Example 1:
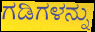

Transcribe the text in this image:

ಗಡಿಗಳನ್ನು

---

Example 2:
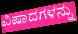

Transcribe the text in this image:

ವಿಷಾದಗಳನ್ನು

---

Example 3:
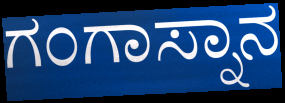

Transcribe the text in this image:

ಗಂಗಾಸ್ನಾನ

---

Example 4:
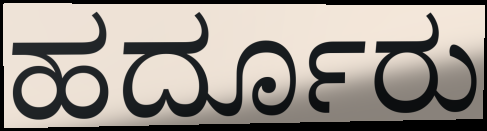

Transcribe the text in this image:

ಹರ್ದೂರು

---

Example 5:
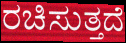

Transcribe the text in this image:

ರಚಿಸುತ್ತದೆ